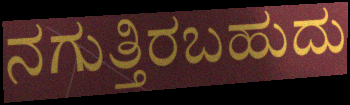
ನಗುತ್ತಿರಬಹುದು